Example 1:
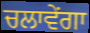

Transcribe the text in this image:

ਚਲਾਵੇਂਗਾ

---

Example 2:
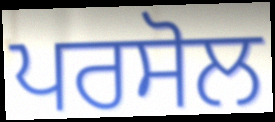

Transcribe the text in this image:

ਪਰਸੋਲ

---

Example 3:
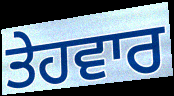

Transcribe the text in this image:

ਤੇਹਵਾਰ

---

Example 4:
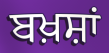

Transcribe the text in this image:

ਬਖ਼ਸ਼ਾਂ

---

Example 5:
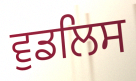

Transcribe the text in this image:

ਵੁਡਲਿਸ